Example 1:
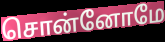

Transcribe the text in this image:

சொன்னோமே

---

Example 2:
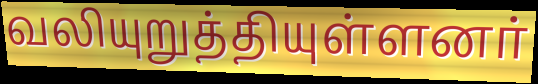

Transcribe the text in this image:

வலியுறுத்தியுள்ளனர்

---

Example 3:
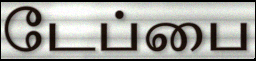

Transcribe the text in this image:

டேப்பை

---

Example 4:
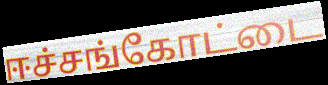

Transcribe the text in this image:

ஈச்சங்கோட்டை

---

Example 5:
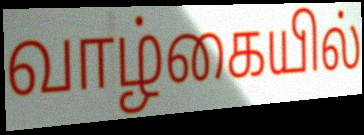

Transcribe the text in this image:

வாழ்கையில்